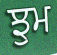
ਝੁਮ